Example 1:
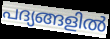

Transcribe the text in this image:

പദ്യങ്ങളിൽ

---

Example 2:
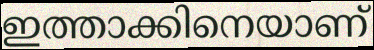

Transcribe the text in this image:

ഇത്താക്കിനെയാണ്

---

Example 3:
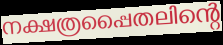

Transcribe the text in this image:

നക്ഷത്രപ്പൈതലിന്റെ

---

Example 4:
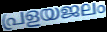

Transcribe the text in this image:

പ്രളയജലം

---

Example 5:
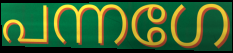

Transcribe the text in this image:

പന്നഗേ